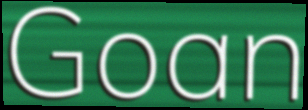
Goan